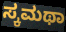
ಸ್ಕಮಥಾ